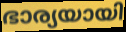
ഭാര്യയായി